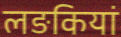
लङकियां